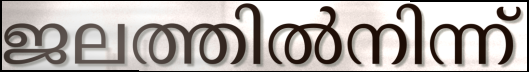
ജലത്തിൽനിന്ന്